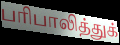
பரிபாலித்துக்